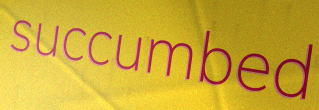
succumbed